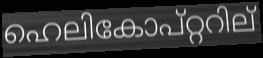
ഹെലികോപ്റ്ററില്